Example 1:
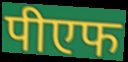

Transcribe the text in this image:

पीएफ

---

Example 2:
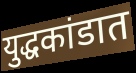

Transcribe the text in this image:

युद्धकांडात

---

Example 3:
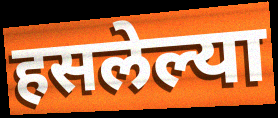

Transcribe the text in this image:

हसलेल्या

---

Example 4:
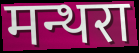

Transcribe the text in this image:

मन्थरा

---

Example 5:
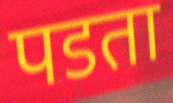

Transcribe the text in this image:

पडता